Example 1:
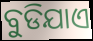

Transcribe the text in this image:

ବୁଡିଯାଏ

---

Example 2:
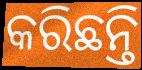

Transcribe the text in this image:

କରିଛନ୍ତି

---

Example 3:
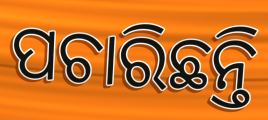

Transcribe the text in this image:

ପଚାରିଛନ୍ତି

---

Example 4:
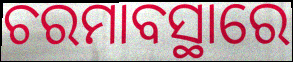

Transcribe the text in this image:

ଚରମାବସ୍ଥାରେ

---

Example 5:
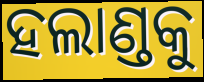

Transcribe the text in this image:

ହଲାଣ୍ଡକୁ